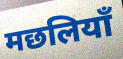
मछलियाँ